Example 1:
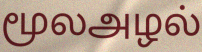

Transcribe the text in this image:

மூலஅழல்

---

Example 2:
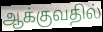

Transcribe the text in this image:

ஆக்குவதில்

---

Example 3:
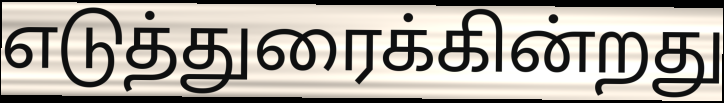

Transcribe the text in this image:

எடுத்துரைக்கின்றது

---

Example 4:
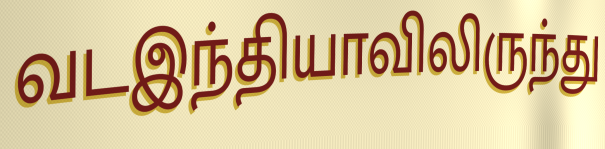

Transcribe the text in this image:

வடஇந்தியாவிலிருந்து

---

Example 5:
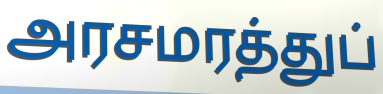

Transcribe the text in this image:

அரசமரத்துப்